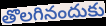
తొలగినందుకు